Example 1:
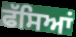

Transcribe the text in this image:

ਫੱਸਿਆਂ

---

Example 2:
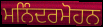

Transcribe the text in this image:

ਮਨਿੰਦਰਮੋਹਨ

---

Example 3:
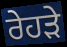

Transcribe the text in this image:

ਰੇਹੜੇ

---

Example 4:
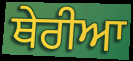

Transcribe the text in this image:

ਥੇਰੀਆ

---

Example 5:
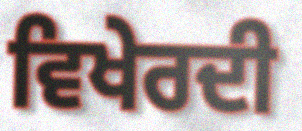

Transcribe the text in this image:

ਵਿਖੇਰਦੀ